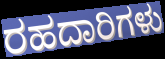
ರಹದಾರಿಗಳು